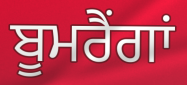
ਬੂਮਰੈਂਗਾਂ